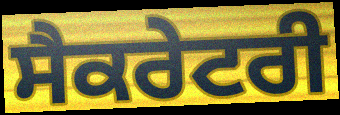
ਸੈਕਰੇਟਰੀ